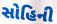
સોહિની